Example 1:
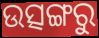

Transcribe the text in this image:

ଉତ୍ସଙ୍ଗରୁ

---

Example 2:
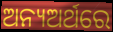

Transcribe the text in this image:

ଅନ୍ୟଅର୍ଥରେ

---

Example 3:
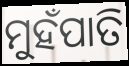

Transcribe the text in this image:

ମୁହଁପାତି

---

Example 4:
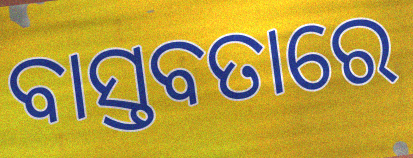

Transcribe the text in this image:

ବାସ୍ତବତାରେ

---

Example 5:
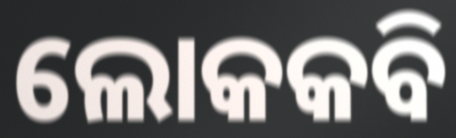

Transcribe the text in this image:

ଲୋକକବି